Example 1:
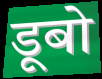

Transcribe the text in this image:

डूबो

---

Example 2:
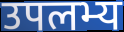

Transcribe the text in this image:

उपलभ्य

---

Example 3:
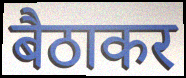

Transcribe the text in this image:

बैठाकर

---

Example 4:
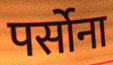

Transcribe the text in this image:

पर्सोना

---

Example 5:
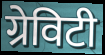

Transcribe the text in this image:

ग्रेविटी